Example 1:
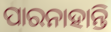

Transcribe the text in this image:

ପାରନାହାନ୍ତି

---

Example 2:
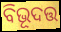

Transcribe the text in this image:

ବିଭୂଦତ୍ତ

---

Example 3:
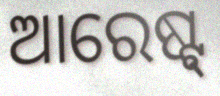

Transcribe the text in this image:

ଆରେଷ୍ଟ୍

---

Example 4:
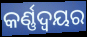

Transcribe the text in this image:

କର୍ଣ୍ଣଦ୍ୱୟର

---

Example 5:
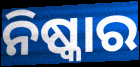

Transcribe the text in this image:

ନିଷ୍କାର